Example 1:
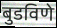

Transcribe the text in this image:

बुडविणे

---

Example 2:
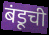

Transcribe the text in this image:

बंडूची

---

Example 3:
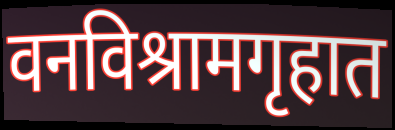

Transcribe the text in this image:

वनविश्रामगृहात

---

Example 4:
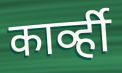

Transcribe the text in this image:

कार्व्ही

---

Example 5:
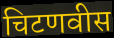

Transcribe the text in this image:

चिटणवीस